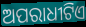
ଅପରାଧୀଟିଏ